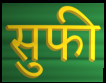
सुफी